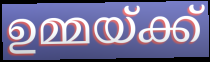
ഉമ്മയ്ക്ക്